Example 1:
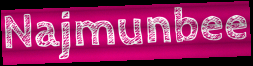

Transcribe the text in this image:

Najmunbee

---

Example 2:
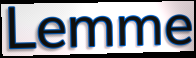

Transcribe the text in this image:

Lemme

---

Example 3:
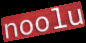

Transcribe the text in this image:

noolu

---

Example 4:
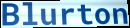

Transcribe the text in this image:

Blurton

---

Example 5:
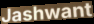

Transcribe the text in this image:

Jashwant